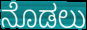
ನೊಡಲು